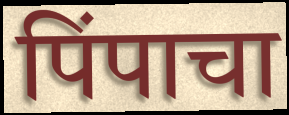
पिंपाचा